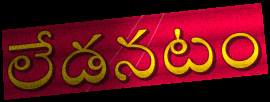
లేడనటం